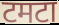
टमटा